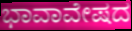
ಭಾವಾವೇಷದ